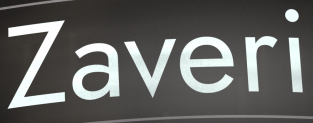
Zaveri